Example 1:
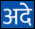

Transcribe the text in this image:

अदे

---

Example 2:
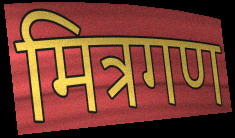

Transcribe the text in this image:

मित्रगण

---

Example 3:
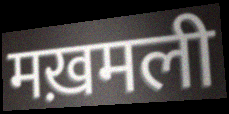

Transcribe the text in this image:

मख़मली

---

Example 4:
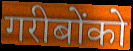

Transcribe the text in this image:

गरीबोंको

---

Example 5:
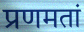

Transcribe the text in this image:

प्रणमतां